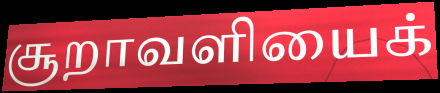
சூறாவளியைக்